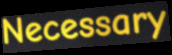
Necessary